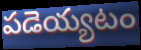
పడెయ్యటం